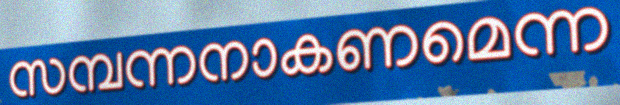
സമ്പന്നനാകണമെന്ന